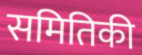
समितिकी